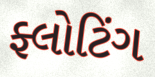
ફ્લોટિંગ